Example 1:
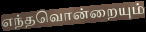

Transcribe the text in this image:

எந்தவொன்றையும்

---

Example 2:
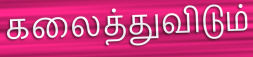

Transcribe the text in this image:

கலைத்துவிடும்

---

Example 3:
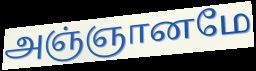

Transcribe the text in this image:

அஞ்ஞானமே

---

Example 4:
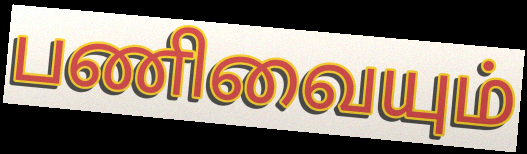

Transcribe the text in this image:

பணிவையும்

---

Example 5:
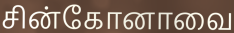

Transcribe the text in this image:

சின்கோனாவை